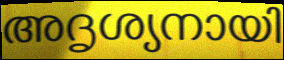
അദൃശ്യനായി